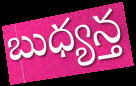
బుధ్యన్త